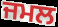
ਜਮਲ